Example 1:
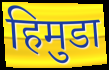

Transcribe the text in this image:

हिमुडा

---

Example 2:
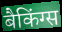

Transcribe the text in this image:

बैकिंग्स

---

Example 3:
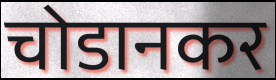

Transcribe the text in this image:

चोडानकर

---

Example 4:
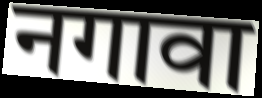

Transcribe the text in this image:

नगावा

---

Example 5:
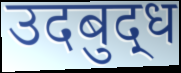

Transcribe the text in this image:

उदबुद्ध